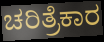
ಚರಿತ್ರೆಕಾರ